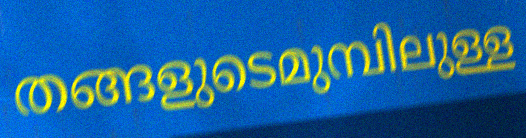
തങ്ങളുടെമുമ്പിലുള്ള